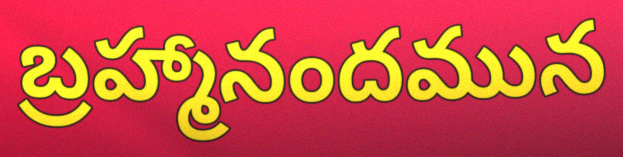
బ్రహ్మానందమున